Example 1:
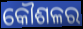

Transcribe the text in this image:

କୌଶଳର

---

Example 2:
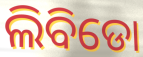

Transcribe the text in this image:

ଲିବିଡୋ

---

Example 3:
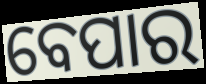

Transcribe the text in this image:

ବେପାର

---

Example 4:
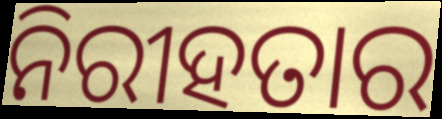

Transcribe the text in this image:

ନିରୀହତାର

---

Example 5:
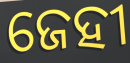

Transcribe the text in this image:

ଜେହୀ